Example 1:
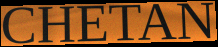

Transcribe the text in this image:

CHETAN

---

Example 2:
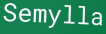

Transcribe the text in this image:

Semylla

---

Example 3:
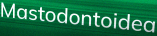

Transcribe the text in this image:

Mastodontoidea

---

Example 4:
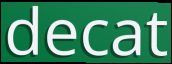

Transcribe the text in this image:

decat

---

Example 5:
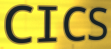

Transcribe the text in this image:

CICS